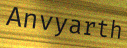
Anvyarth